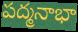
పద్మనాభా